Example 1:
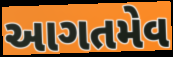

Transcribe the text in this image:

આગતમેવ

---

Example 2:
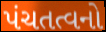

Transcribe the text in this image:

પંચતત્વનો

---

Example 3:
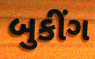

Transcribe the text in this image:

બુકીંગ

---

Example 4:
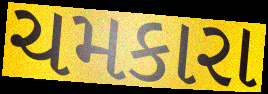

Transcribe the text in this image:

ચમકારા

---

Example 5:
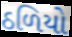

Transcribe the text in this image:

ઠળિયો